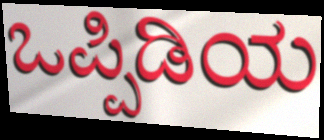
ಒಪ್ಪಿಡಿಯ